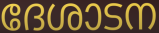
ദേശാടന